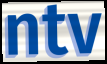
ntv